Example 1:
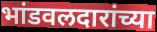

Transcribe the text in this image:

भांडवलदारांच्या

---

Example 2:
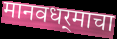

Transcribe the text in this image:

मानवधर्माचा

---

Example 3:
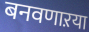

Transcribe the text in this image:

बनवणाऱया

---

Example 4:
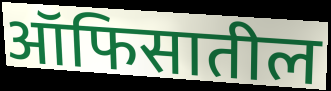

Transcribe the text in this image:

ऑफिसातील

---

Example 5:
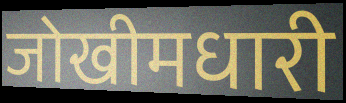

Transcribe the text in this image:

जोखीमधारी